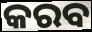
କରବ